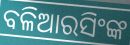
ବଳିଆରସିଂଙ୍କ